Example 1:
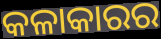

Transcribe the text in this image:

କଳାକାରର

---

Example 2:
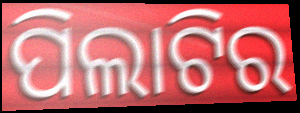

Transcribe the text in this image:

ପିଲାଟିର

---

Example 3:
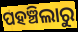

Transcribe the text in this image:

ପହଞ୍ଚିଲାରୁ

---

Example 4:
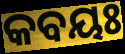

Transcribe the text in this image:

କବୟଃ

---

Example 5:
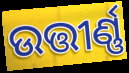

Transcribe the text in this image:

ଉତ୍ତୀର୍ଣ୍ଣ